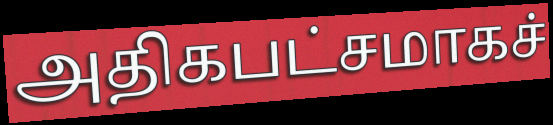
அதிகபட்சமாகச்